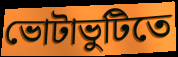
ভোটাভুটিতে